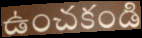
ఉంచకండి